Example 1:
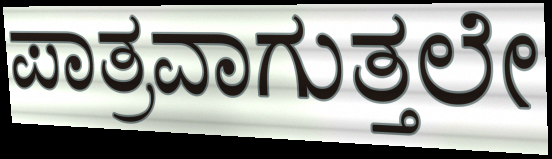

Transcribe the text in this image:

ಪಾತ್ರವಾಗುತ್ತಲೇ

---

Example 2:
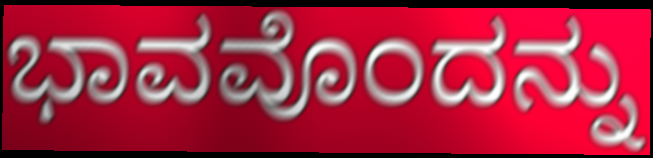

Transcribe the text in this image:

ಭಾವವೊಂದನ್ನು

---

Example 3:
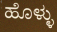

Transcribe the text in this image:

ಹೊಳ್ಳು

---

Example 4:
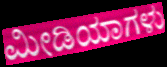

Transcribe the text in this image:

ಮೀಡಿಯಾಗಳು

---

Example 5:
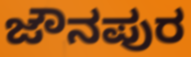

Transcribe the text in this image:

ಜೌನಪುರ